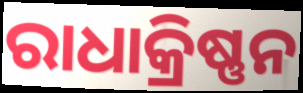
ରାଧାକ୍ରିଷ୍ଣନ